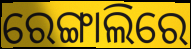
ରେଙ୍ଗାଲିରେ